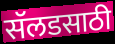
सॅलडसाठी